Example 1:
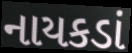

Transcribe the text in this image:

નાયકડાં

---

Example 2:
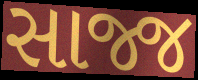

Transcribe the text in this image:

સાજ્જ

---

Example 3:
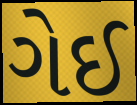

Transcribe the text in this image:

ગેઈ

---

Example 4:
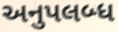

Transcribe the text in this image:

અનુપલબ્ધ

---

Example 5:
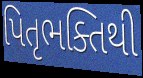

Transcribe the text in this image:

પિતૃભક્તિથી